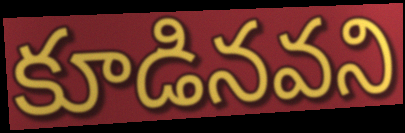
కూడినవని